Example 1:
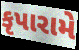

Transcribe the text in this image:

કૃપારામે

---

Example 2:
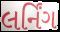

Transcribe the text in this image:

લર્નિંગ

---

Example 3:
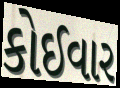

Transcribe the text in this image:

કોઈવાર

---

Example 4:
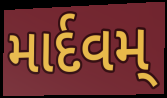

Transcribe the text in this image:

માર્દવમ્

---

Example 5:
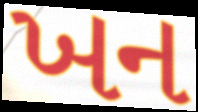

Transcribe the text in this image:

ખન